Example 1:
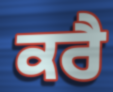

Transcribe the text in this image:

ਕਰੈ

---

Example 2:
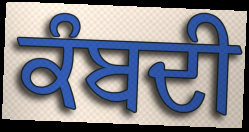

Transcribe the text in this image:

ਕੰਬਦੀ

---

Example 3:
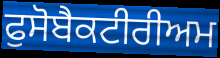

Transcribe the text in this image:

ਫੁਸੋਬੈਕਟੀਰੀਅਮ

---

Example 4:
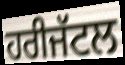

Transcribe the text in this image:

ਹਰੀਜੱਟਲ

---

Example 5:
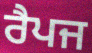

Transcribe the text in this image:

ਰੈਪਜ